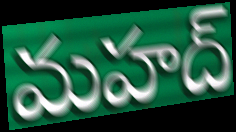
మహద్